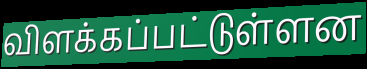
விளக்கப்பட்டுள்ளன